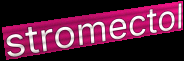
stromectol